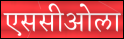
एससीओला